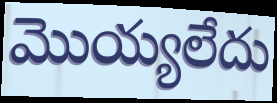
మొయ్యలేదు